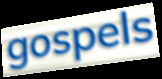
gospels